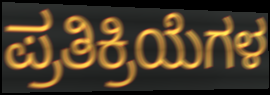
ಪ್ರತಿಕ್ರಿಯೆಗಳ